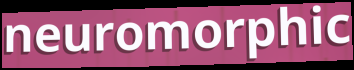
neuromorphic